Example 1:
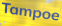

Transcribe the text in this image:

Tampoe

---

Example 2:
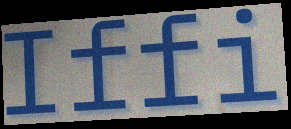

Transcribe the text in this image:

Iffi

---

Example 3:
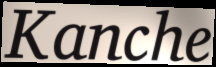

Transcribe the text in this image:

Kanche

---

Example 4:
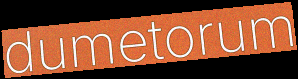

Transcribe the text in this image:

dumetorum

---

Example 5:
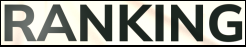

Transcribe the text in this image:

RANKING